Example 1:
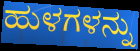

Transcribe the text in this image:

ಹುಳಗಳನ್ನು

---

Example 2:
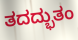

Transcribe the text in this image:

ತದದ್ಭುತಂ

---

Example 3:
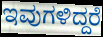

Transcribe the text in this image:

ಇವುಗಳಿದ್ದರೆ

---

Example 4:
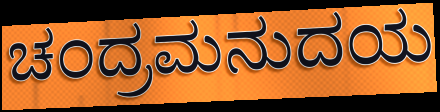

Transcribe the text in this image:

ಚಂದ್ರಮನುದಯ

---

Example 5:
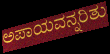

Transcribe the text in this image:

ಅಪಾಯವನ್ನರಿತು